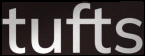
tufts